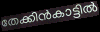
തേക്കിൻകാട്ടിൽ